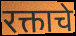
रक्ताचे